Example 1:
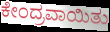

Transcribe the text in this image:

ಕೇಂದ್ರವಾಯಿತು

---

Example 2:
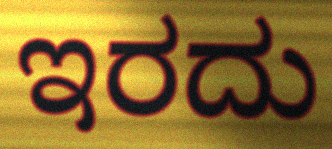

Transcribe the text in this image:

ಇರದು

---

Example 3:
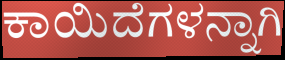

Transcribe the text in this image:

ಕಾಯಿದೆಗಳನ್ನಾಗಿ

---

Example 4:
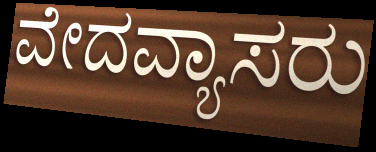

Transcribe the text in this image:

ವೇದವ್ಯಾಸರು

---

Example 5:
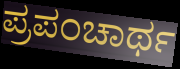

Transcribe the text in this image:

ಪ್ರಪಂಚಾರ್ಥ